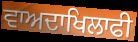
ਵਾਅਦਾਖਿਲਾਫੀ